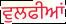
ਵੁਲਫੀਆਂ